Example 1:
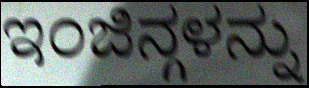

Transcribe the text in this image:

ಇಂಜಿನ್ಗಳನ್ನು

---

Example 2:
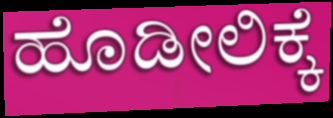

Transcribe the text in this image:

ಹೊಡೀಲಿಕ್ಕೆ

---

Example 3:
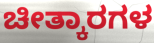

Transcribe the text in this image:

ಚೀತ್ಕಾರಗಳ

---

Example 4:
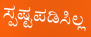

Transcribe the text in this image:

ಸ್ಪಷ್ಟಪಡಿಸಿಲ್ಲ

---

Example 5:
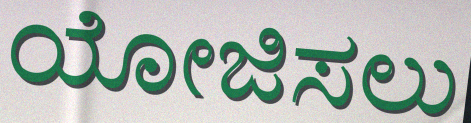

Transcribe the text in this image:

ಯೋಜಿಸಲು